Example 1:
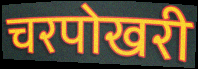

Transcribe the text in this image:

चरपोखरी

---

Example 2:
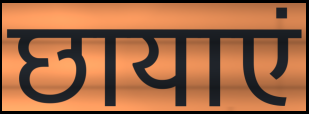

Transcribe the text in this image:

छायाएं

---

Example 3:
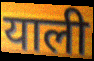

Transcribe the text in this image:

याली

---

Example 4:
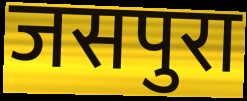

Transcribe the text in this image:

जसपुरा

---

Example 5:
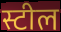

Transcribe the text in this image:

स्‍टील